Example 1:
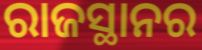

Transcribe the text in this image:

ରାଜସ୍ଥାନର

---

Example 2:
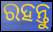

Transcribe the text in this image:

ରହନ୍ତୁ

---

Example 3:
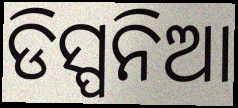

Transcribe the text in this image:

ଡିସ୍ପନିଆ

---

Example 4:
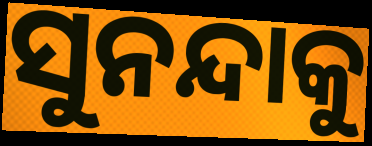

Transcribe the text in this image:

ସୁନନ୍ଦାକୁ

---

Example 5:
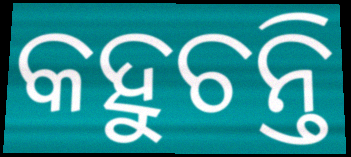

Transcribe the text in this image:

କହୁଚନ୍ତି